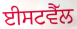
ਈਸਟਵੈੱਲ